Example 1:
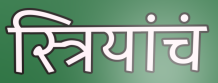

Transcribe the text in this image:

स्त्रियांचं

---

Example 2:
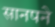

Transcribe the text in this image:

सानपने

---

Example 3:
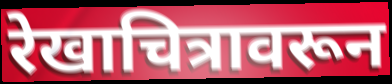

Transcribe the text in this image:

रेखाचित्रावरून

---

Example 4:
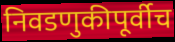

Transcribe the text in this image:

निवडणुकीपूर्वीच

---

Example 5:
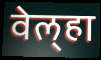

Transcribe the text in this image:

वेल्हा